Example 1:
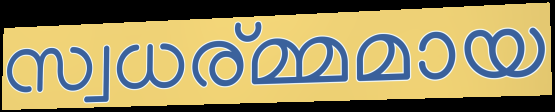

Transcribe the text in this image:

സ്വധര്മ്മമായ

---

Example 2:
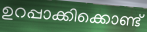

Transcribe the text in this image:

ഉറപ്പാക്കിക്കൊണ്ട്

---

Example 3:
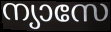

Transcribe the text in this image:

ന്യാസേ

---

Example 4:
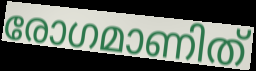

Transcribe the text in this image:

രോഗമാണിത്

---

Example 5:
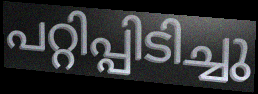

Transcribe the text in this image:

പറ്റിപ്പിടിച്ചു